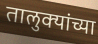
तालुक्यांच्या